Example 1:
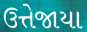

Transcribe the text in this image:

ઉત્તેજાયા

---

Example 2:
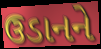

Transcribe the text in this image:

ઉડાનને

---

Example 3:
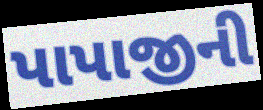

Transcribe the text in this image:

પાપાજીની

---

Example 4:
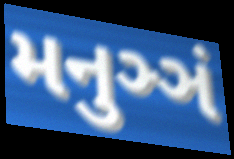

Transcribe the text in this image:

મનુઞ્ઞં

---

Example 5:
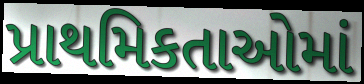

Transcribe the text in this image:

પ્રાથમિકતાઓમાં